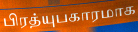
பிரத்யுபகாரமாக